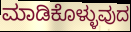
ಮಾಡಿಕೊಳ್ಳುವುದ